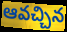
ఆవచ్చిన